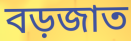
বড়জাত